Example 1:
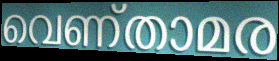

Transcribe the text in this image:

വെണ്താമര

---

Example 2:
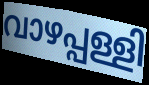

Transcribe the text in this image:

വാഴപ്പള്ളി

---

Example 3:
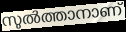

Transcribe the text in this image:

സുൽത്താനാണ്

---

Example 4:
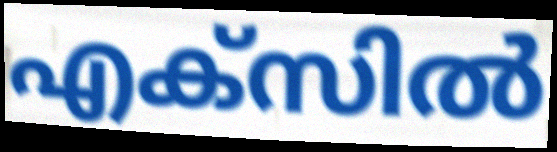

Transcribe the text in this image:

എക്സിൽ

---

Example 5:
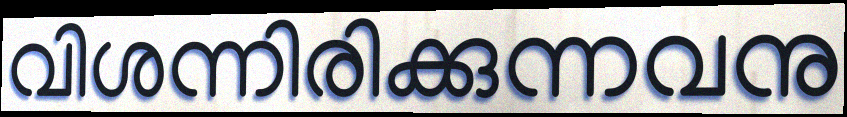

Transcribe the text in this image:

വിശന്നിരിക്കുന്നവനു